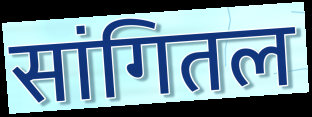
सांगितल